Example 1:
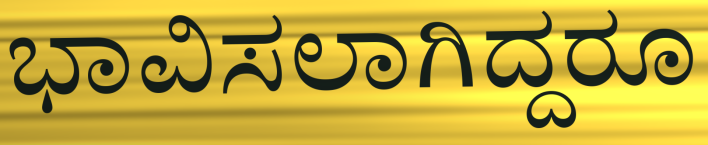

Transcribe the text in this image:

ಭಾವಿಸಲಾಗಿದ್ದರೂ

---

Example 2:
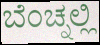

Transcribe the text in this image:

ಬೆಂಚ್ನಲ್ಲಿ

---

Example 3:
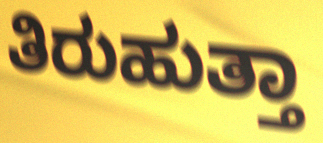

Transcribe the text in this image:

ತಿರುಹುತ್ತಾ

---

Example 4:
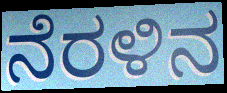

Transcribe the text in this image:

ನೆರಳಿನ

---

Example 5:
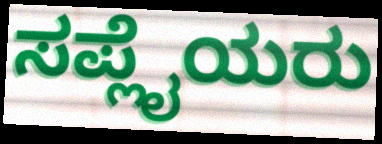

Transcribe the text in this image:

ಸಪ್ಲೈಯರು